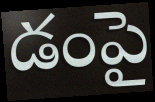
డంపై